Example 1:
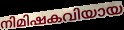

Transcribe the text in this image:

നിമിഷകവിയായ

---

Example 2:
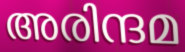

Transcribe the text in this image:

അരിന്ദമ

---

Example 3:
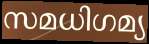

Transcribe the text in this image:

സമധിഗമ്യ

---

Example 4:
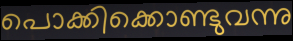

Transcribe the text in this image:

പൊക്കിക്കൊണ്ടുവന്നു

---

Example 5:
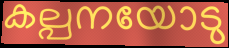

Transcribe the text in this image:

കല്പനയോടു